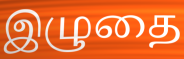
இழுதை